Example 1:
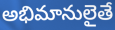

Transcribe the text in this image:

అభిమానులైతే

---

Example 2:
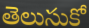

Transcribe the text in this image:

తెలుసుకో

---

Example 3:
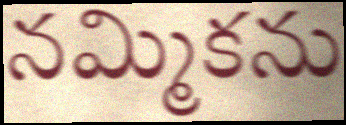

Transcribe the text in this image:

నమ్మికను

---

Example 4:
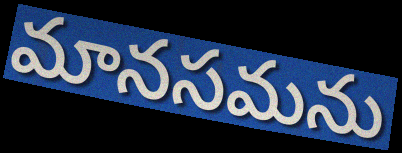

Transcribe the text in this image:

మానసమను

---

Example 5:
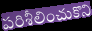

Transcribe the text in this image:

పరిశీలించుకొని